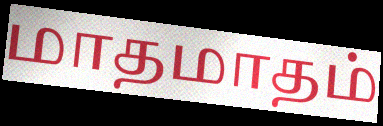
மாதமாதம்